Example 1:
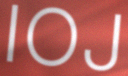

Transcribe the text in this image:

IOJ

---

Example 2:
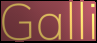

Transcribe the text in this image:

Galli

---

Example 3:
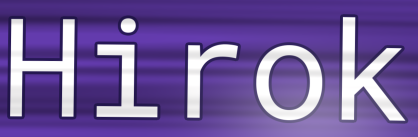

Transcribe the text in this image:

Hirok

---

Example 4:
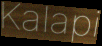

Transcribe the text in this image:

Kalapi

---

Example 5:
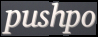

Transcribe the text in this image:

pushpo